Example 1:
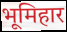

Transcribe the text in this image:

भूमिहार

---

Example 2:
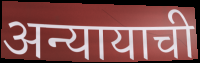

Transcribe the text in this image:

अन्यायाची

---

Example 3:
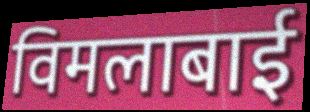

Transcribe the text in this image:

विमलाबाई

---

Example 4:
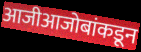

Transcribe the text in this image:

आजीआजोबांकडून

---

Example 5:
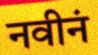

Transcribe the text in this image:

नवीनं